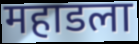
महाडला